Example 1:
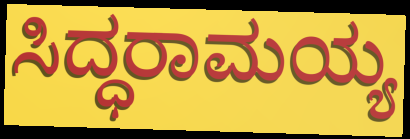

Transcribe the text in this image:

ಸಿದ್ಧರಾಮಯ್ಯ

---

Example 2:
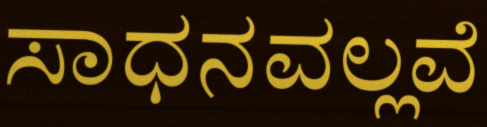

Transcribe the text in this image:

ಸಾಧನವಲ್ಲವೆ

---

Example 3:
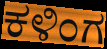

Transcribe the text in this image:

ಕಳಿಂಗ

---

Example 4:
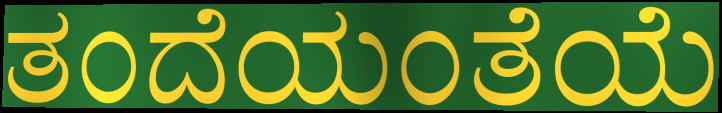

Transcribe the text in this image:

ತಂದೆಯಂತೆಯೆ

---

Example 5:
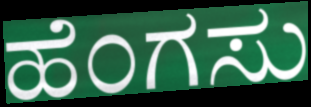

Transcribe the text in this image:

ಹೆಂಗಸು